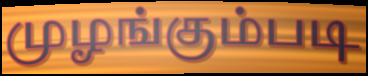
முழங்கும்படி